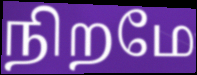
நிறமே